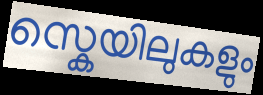
സ്കെയിലുകളും